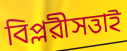
বিপ্লৱীসত্তাই